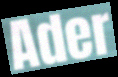
Ader